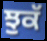
ਝੁਕੱ